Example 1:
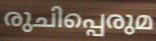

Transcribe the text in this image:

രുചിപ്പെരുമ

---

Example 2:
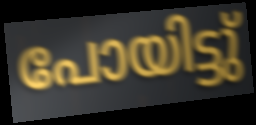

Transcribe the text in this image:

പോയിട്ടു്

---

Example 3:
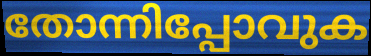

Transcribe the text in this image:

തോന്നിപ്പോവുക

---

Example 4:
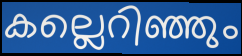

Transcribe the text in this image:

കല്ലെറിഞ്ഞും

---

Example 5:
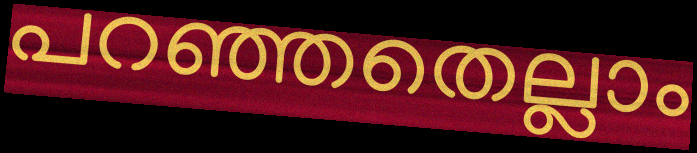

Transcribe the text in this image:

പറഞ്ഞതെല്ലാം